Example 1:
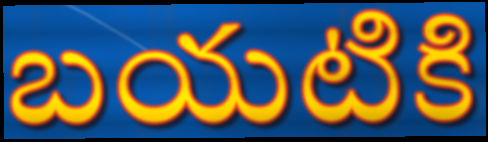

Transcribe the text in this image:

బయటికి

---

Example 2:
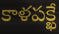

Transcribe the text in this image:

కాళపక్ఖే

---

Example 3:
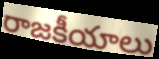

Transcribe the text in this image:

రాజకీయాలు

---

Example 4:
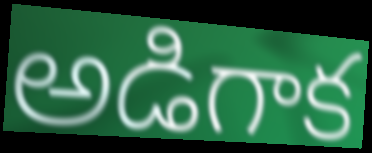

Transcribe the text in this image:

అడిగాక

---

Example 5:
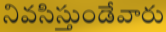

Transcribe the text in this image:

నివసిస్తుండేవారు